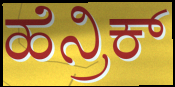
ಹೆನ್ರಿಕ್